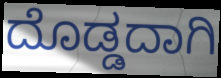
ದೊಡ್ಡದಾಗಿ